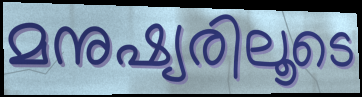
മനുഷ്യരിലൂടെ